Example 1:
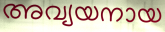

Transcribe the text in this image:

അവ്യയനായ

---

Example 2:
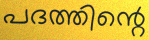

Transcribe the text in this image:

പദത്തിന്റെ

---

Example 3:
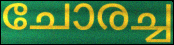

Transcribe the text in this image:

ചോരച്ച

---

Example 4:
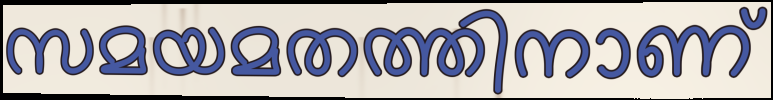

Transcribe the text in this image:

സമയമതത്തിനാണ്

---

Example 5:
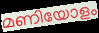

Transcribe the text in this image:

മണിയോളം